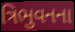
ત્રિભુવનના